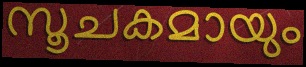
സൂചകമായും